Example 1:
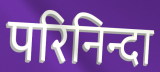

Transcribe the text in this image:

परिनिन्दा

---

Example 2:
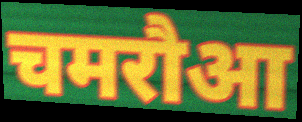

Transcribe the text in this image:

चमरौआ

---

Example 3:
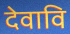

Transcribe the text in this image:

देवावि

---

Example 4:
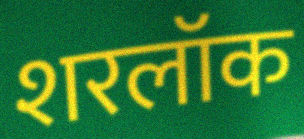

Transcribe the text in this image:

शरलॉक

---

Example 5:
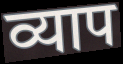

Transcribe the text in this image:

व्याप